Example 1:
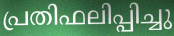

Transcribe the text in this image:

പ്രതിഫലിപ്പിച്ചു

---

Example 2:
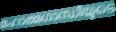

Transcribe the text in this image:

മഹാത്മഗാന്ധിയുടെ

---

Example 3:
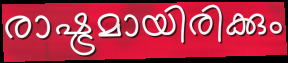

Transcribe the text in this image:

രാഷ്ട്രമായിരിക്കും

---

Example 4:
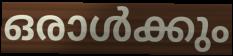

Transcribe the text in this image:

ഒരാൾക്കും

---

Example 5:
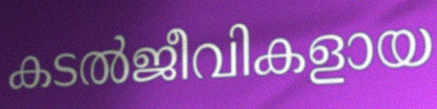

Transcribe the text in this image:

കടൽജീവികളായ